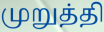
முறுத்தி